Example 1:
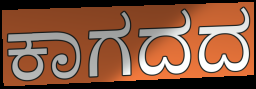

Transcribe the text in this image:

ಕಾಗದದ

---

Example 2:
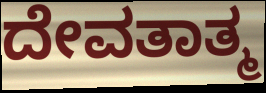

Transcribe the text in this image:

ದೇವತಾತ್ಮ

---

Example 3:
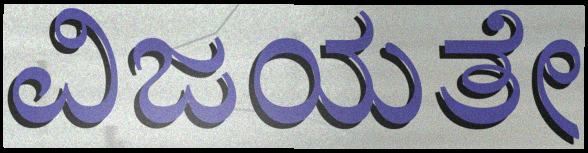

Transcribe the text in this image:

ವಿಜಯತೇ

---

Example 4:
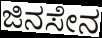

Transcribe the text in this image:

ಜಿನಸೇನ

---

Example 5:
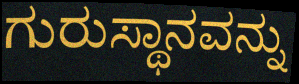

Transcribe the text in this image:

ಗುರುಸ್ಥಾನವನ್ನು